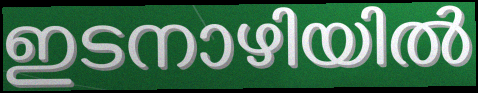
ഇടനാഴിയിൽ